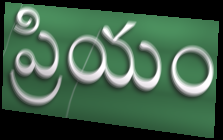
ప్రియం